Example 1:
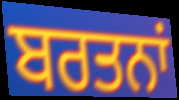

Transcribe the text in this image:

ਬਰਤਨਾਂ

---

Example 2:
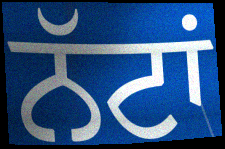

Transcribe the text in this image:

ਨੱਟਾਂ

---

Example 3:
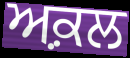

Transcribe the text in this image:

ਅ਼ਕ਼ਲ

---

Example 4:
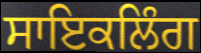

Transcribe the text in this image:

ਸਾਇਕਲਿੰਗ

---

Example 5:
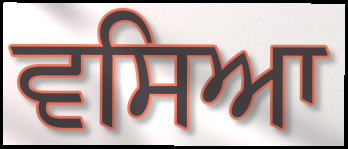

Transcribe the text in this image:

ਵਸਿਆ